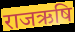
राजऋषि